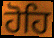
ਹੋਹਿ